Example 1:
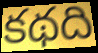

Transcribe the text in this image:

కథది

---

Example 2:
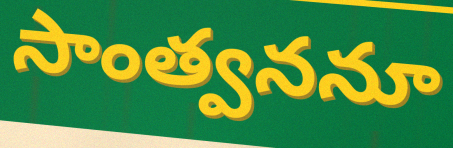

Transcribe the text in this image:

సాంత్వననూ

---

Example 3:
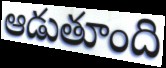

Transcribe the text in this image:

ఆడుతూంది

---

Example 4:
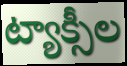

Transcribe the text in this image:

ట్యాక్సీల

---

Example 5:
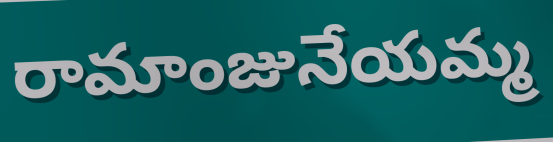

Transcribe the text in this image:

రామాంజునేయమ్మ